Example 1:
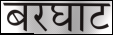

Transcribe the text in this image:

बरघाट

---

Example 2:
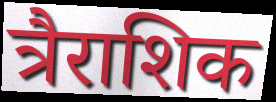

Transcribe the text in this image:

त्रैराशिक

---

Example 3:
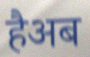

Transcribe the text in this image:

हैअब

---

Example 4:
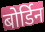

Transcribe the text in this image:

बोर्डिन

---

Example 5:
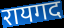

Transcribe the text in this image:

रायगद